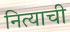
नित्याची